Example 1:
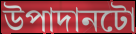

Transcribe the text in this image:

উপাদানটো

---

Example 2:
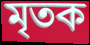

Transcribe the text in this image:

মৃতক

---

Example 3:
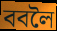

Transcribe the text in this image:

ববলৈ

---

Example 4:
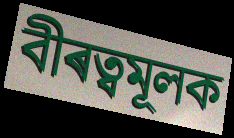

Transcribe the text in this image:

বীৰত্বমূলক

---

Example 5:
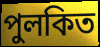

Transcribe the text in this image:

পুলকিত